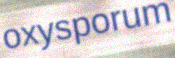
oxysporum